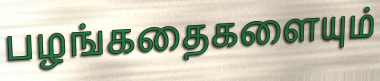
பழங்கதைகளையும்